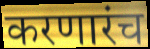
करणारंच